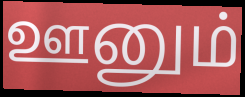
ஊனும்